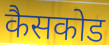
कैसकोड